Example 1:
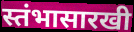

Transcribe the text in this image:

स्तंभासारखी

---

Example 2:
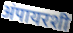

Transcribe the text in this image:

अंपायरशी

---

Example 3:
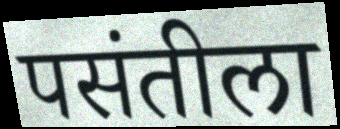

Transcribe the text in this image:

पसंतीला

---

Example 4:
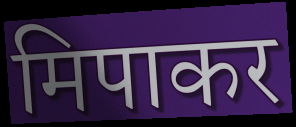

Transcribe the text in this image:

मिपाकर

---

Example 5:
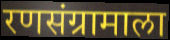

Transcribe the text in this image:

रणसंग्रामाला